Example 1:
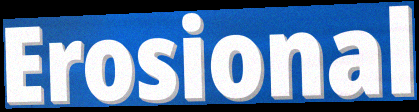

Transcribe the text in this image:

Erosional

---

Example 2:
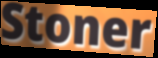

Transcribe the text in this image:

Stoner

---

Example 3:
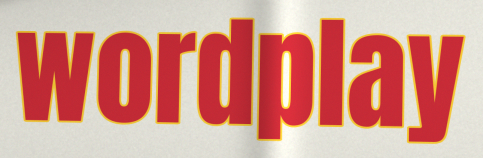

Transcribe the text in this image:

wordplay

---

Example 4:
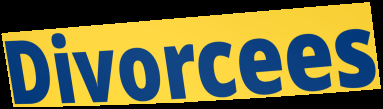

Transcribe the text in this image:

Divorcees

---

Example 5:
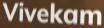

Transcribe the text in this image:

Vivekam